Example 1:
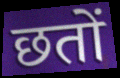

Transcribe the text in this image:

छतों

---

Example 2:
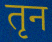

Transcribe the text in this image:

तृन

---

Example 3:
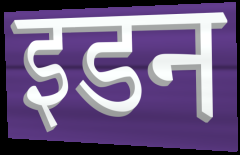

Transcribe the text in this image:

इडन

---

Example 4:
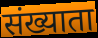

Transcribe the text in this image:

संख्याता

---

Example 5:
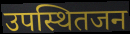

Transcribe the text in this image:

उपस्थितजन